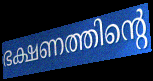
ഭക്ഷണത്തിന്റെ